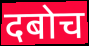
दबोच